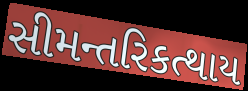
સીમન્તરિકત્થાય